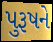
પુરૂષને